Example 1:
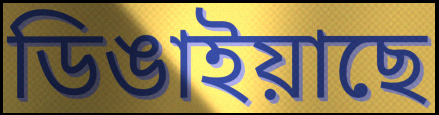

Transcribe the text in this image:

ডিঙাইয়াছে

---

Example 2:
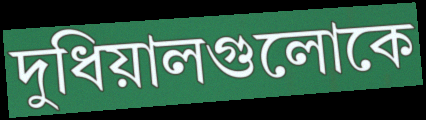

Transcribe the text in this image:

দুধিয়ালগুলোকে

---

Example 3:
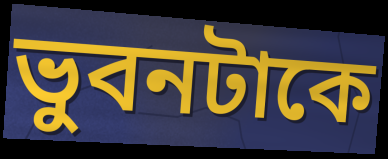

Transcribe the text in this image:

ভুবনটাকে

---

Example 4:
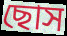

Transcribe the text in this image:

ছোস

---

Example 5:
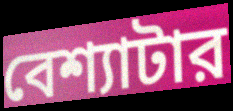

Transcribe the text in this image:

বেশ্যাটার